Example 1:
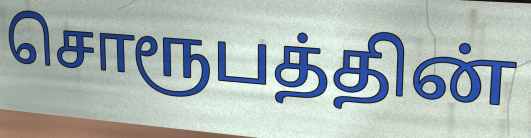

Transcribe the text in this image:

சொரூபத்தின்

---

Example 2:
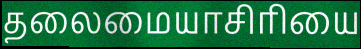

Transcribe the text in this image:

தலைமையாசிரியை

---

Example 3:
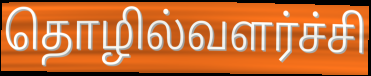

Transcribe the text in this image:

தொழில்வளர்ச்சி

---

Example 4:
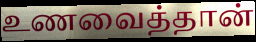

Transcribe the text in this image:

உணவைத்தான்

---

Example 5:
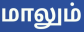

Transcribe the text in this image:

மாலும்